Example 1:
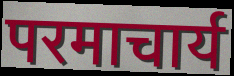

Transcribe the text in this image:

परमाचार्य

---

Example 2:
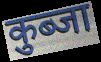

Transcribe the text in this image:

कुब्जा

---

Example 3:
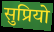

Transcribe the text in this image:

सुप्रियो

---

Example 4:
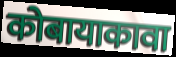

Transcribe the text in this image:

कोबायाकावा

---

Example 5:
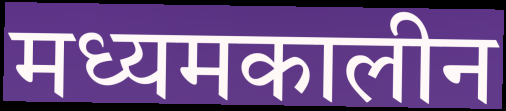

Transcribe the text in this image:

मध्यमकालीन